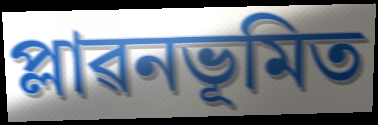
প্লাৱনভূমিত